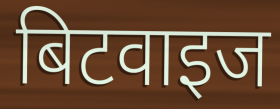
बिटवाइज